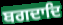
ਬਗਦਾਦਿ